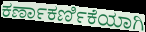
ಕರ್ಣಾಕರ್ಣಿಕೆಯಾಗಿ